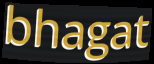
bhagat